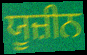
ਯੂਜ਼ੀਨ